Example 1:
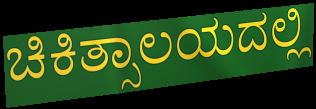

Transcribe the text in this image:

ಚಿಕಿತ್ಸಾಲಯದಲ್ಲಿ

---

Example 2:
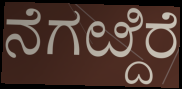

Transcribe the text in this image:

ನೆಗೞ್ದಿರೆ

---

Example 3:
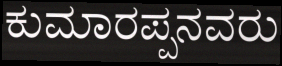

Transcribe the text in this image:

ಕುಮಾರಪ್ಪನವರು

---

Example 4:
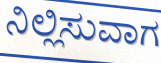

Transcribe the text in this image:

ನಿಲ್ಲಿಸುವಾಗ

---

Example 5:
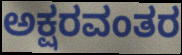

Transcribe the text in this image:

ಅಕ್ಷರವಂತರ